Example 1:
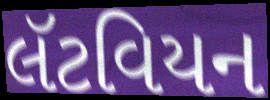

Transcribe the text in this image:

લૅટવિયન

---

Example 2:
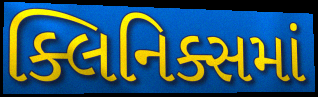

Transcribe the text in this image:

ક્લિનિક્સમાં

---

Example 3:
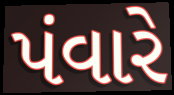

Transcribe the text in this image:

પંવારે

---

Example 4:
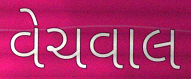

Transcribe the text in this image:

વેચવાલ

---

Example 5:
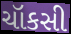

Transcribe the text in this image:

ચૉકસી